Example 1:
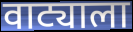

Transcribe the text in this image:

वाट्याला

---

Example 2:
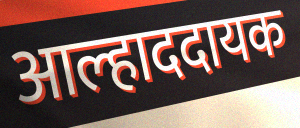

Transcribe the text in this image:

आल्हाददायक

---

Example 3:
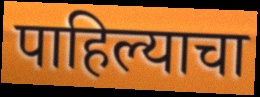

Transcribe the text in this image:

पाहिल्याचा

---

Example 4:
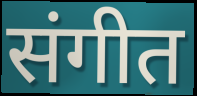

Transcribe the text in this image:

संगीत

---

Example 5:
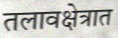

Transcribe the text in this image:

तलावक्षेत्रात